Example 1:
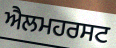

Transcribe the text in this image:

ਐਲਮਹਰਸਟ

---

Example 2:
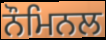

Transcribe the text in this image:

ਨੌਮਿਨਲ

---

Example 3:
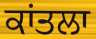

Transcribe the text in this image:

ਕਾਂਤਲਾ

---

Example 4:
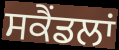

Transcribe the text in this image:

ਸਕੈਂਡਲਾਂ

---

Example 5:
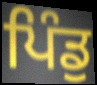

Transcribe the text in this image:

ਪਿੰਡੁ